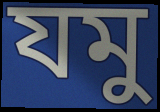
যমু